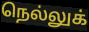
நெல்லுக்